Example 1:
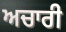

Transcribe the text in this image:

ਅਚਾਰੀ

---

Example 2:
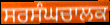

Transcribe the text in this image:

ਸਰਸੰਘਚਾਲਕ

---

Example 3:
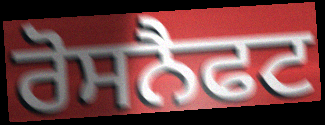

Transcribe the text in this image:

ਰੋਸਨੈਫਟ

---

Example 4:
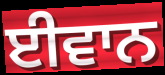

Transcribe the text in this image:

ਈਵਾਨ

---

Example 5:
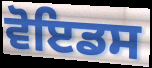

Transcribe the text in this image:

ਵੋਇਡਸ